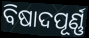
ବିଷାଦପୂର୍ଣ୍ଣ